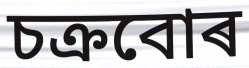
চক্ৰবোৰ